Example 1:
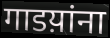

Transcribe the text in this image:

गाडय़ांना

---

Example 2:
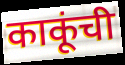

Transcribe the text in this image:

काकूंची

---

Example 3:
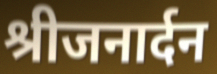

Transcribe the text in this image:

श्रीजनार्दन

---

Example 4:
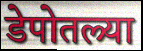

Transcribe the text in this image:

डेपोतल्या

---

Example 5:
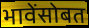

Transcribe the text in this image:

भावेंसोबत